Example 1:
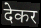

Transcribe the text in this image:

देकर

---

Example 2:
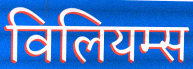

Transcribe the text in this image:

विलियम्स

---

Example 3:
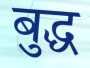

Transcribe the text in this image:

बुद्ध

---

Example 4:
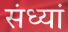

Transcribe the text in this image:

संध्यां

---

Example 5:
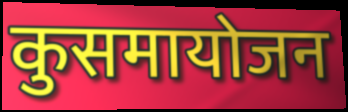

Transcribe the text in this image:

कुसमायोजन